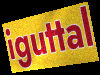
iguttal